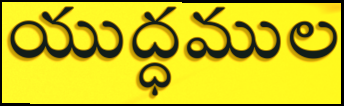
యుద్ధముల